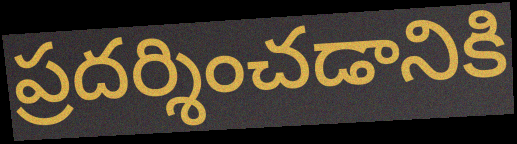
ప్రదర్శించడానికి